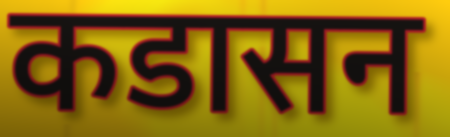
कडासन